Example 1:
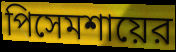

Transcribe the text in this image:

পিসেমশায়ের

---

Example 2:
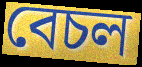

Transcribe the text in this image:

বেচল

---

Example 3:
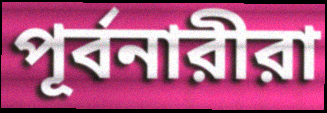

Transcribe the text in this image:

পূর্বনারীরা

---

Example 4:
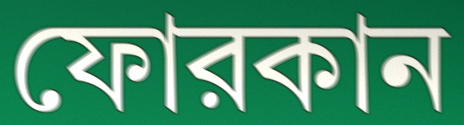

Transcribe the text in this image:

ফোরকান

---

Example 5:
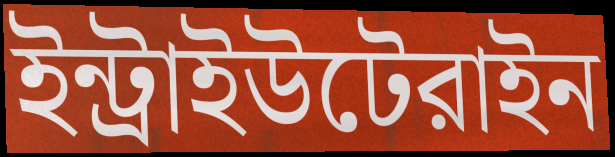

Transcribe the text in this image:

ইন্ট্রাইউটেরাইন